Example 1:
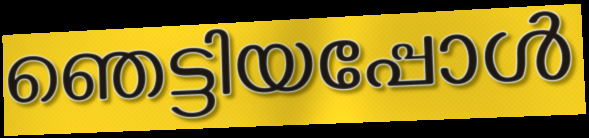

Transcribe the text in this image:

ഞെട്ടിയപ്പോൾ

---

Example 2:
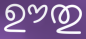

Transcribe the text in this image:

ഊതു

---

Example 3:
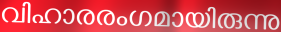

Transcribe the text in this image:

വിഹാരരംഗമായിരുന്നു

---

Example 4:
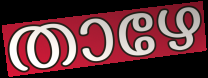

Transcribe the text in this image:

താഴേ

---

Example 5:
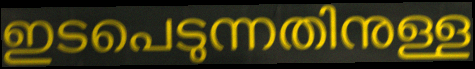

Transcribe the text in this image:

ഇടപെടുന്നതിനുള്ള